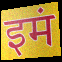
इमं